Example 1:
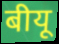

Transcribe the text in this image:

बीयू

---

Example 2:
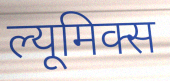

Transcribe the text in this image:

ल्यूमिक्स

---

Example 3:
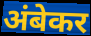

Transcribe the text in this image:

अंबेकर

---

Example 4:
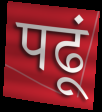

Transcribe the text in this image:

पढूं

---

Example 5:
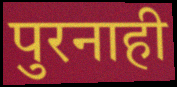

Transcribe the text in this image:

पुरनाही